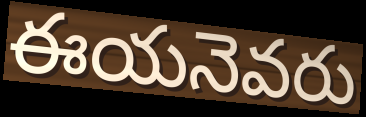
ఈయనెవరు